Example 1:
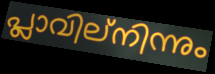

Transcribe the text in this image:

പ്ലാവില്നിന്നും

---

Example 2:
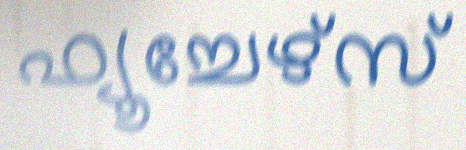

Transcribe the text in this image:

ഫ്യൂച്ചേഴ്സ്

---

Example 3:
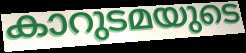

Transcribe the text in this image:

കാറുടമയുടെ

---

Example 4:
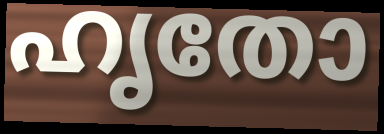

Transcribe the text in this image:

ഹൃതോ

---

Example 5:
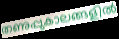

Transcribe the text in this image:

തണുപ്പുകാലങ്ങളിൽ